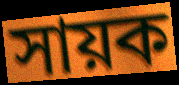
সায়ক